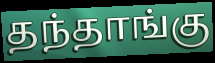
தந்தாங்கு